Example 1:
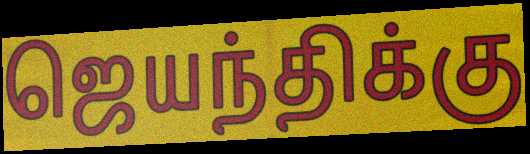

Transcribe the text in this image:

ஜெயந்திக்கு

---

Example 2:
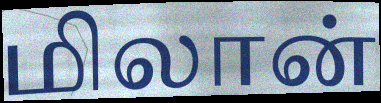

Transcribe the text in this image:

மிலான்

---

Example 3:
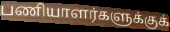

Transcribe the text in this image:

பணியாளர்களுக்குக்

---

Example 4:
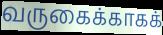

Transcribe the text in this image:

வருகைக்காகக்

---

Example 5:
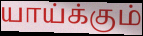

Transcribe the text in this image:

யாய்க்கும்